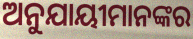
ଅନୁଯାୟୀମାନଙ୍କର